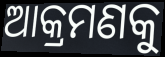
ଆକ୍ରମଣକୁ